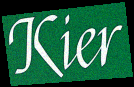
Kier